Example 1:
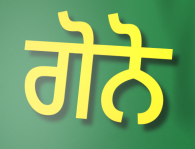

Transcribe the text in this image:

ਗੋਨੋ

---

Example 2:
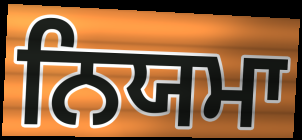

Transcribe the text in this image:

ਨਿਯਮਾ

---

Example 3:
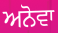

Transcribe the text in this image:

ਅਨੋਵਾ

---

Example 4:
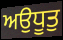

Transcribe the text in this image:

ਅਉਧੂਤੁ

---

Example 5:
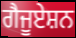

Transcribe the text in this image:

ਗੈਜੂਏਸ਼ਨ